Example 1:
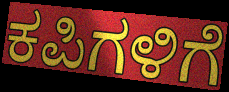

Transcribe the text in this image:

ಕಪಿಗಳಿಗೆ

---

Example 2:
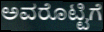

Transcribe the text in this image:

ಅವರೊಟ್ಟಿಗೆ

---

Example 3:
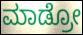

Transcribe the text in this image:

ಮಾಡ್ರೋ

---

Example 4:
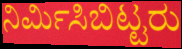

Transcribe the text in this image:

ನಿರ್ಮಿಸಿಬಿಟ್ಟರು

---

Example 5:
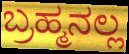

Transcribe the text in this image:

ಬ್ರಹ್ಮನಲ್ಲ